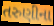
તરુણીના